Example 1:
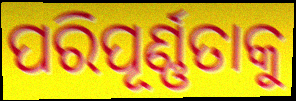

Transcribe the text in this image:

ପରିପୂର୍ଣ୍ଣତାକୁ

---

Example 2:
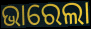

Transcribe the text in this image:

ଭାରେଲା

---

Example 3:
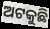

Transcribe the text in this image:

ଅଟକୁଛି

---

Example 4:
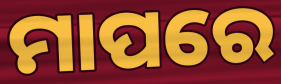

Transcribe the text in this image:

ମାପରେ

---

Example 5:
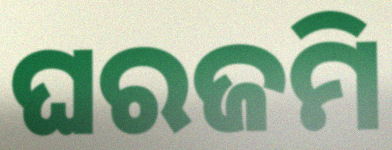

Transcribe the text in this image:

ଘରଜମି